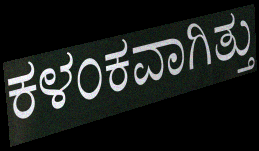
ಕಳಂಕವಾಗಿತ್ತು